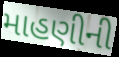
માહણીની